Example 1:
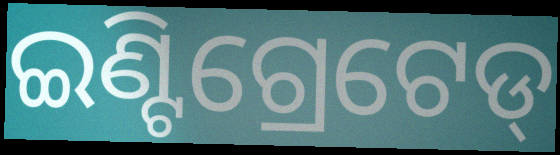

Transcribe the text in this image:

ଇଣ୍ଟିଗ୍ରେଟେଡ୍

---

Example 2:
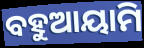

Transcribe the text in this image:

ବହୁଆୟାମି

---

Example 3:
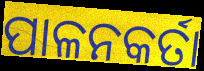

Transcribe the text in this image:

ପାଳନକର୍ତା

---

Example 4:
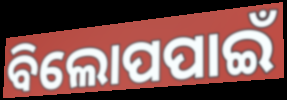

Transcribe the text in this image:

ବିଲୋପପାଇଁ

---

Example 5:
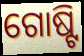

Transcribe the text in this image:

ଗୋଷ୍ଟି